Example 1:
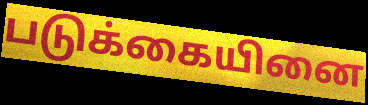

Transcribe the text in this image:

படுக்கையினை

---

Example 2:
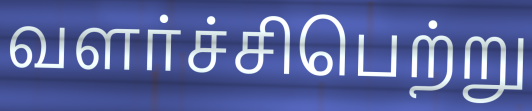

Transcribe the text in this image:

வளர்ச்சிபெற்று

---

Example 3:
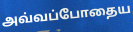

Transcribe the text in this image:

அவ்வப்போதைய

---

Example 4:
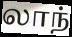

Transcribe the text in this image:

லாந்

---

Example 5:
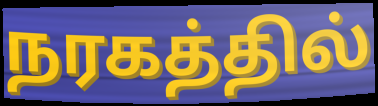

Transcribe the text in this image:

நரகத்தில்